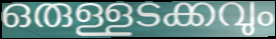
ഒരുള്ളടക്കവും